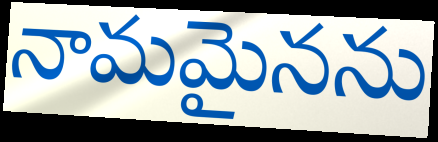
నామమైనను